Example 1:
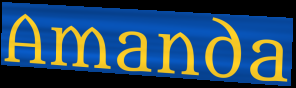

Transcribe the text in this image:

Amanda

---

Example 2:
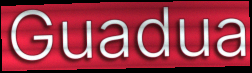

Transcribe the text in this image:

Guadua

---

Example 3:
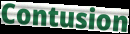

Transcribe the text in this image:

Contusion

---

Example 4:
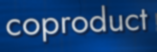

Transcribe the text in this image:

coproduct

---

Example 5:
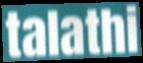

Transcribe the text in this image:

talathi